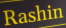
Rashin